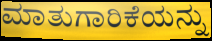
ಮಾತುಗಾರಿಕೆಯನ್ನು